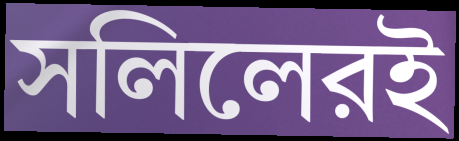
সলিলেরই